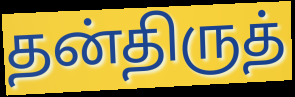
தன்திருத்